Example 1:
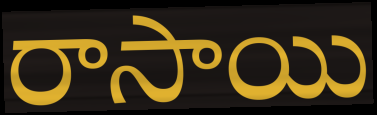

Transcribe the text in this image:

రాసాయి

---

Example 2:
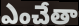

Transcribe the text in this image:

ఎంచేతా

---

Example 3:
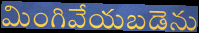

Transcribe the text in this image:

మింగివేయబడెను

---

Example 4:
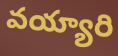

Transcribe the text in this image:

వయ్యారి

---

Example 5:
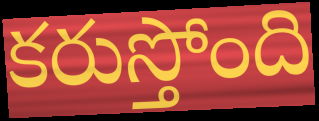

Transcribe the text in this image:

కరుస్తోంది